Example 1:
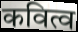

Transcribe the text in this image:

कवित्व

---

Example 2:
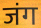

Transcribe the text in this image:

जंग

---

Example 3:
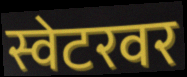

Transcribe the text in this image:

स्वेटरवर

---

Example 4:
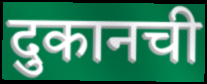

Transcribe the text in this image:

दुकानची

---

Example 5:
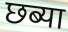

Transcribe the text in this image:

छब्या